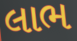
લાભ